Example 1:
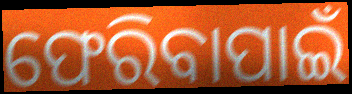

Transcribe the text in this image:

ଫେରିବାପାଇଁ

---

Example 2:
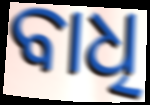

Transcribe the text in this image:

ବାଧି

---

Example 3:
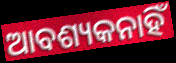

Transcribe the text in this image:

ଆବଶ୍ୟକନାହିଁ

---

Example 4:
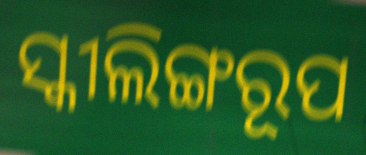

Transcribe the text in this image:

ସ୍କୀଲିଙ୍ଗରୂପ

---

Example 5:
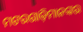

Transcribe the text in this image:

ମଟରଗାଡ଼ିମାନଙ୍କର